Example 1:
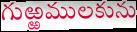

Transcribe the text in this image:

గుఱ్ఱములకును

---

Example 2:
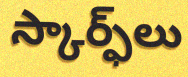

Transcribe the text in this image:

స్కార్ఫ్‌లు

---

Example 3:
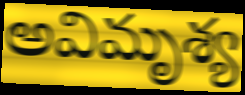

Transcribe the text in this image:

అవిమృశ్య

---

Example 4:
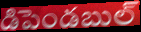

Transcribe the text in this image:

డిపెండబుల్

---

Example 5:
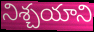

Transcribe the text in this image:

నిశ్చయాని